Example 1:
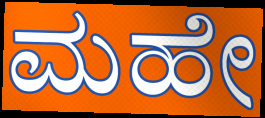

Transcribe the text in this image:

ಮಹೇ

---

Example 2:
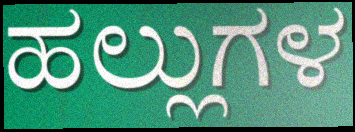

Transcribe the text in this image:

ಹಲ್ಲುಗಳ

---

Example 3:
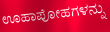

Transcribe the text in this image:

ಊಹಾಪೋಹಗಳನ್ನು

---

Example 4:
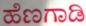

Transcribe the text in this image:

ಹೆಣಗಾಡಿ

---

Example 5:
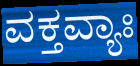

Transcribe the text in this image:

ವಕ್ತವ್ಯಾಃ